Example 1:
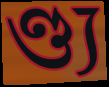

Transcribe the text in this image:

ণ্ড্য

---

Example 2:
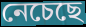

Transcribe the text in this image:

নেচেছে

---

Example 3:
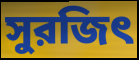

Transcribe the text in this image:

সুরজিৎ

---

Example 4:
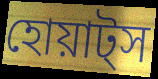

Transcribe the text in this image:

হোয়াট্স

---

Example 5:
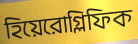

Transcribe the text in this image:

হিয়েরোগ্লিফিক